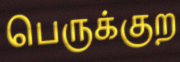
பெருக்குற